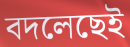
বদলেছেই